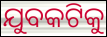
ଯୁବକଟିକୁ